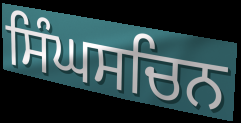
ਸਿੰਘਸਚਿਨ